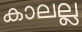
കാലല്ല